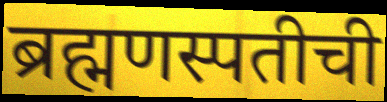
ब्रह्मणस्पतीची